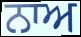
ਨਾਅ